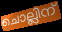
ചൊല്ലിന്